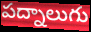
పద్నాలుగు